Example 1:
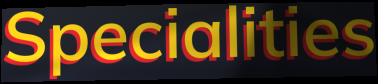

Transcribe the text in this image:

Specialities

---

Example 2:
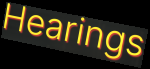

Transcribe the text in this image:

Hearings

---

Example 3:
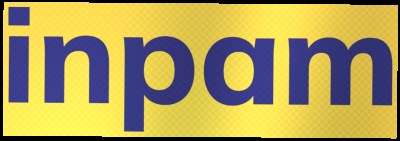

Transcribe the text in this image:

inpam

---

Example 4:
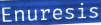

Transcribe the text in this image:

Enuresis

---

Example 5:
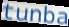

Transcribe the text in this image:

tunba